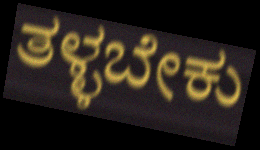
ತಳ್ಳಬೇಕು